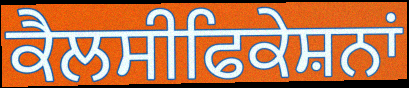
ਕੈਲਸੀਫਿਕੇਸ਼ਨਾਂ